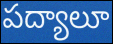
పద్యాలూ